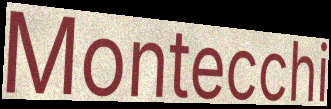
Montecchi